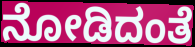
ನೋಡಿದಂತೆ